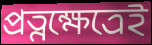
প্রত্নক্ষেত্রেই